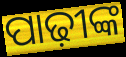
ପାଢ଼ୀଙ୍କ